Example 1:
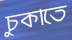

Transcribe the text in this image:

চুকাতে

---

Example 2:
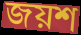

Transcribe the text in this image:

জয়শ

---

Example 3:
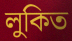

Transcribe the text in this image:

লুকিত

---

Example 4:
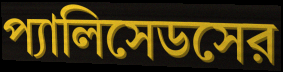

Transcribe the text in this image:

প্যালিসেডসের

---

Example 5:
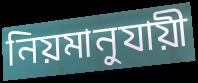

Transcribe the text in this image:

নিয়মানুযায়ী